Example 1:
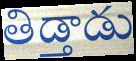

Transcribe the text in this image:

తిడ్తాడు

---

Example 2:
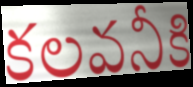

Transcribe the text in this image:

కలవనీకి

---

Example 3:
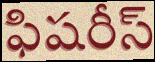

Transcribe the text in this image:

ఫిషరీస్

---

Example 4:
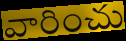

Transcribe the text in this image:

వారించు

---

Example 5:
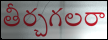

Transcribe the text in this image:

తీర్చగలరా